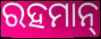
ରହମାନ୍